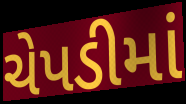
ચેપડીમાં